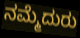
ನಮ್ಮೆದುರು